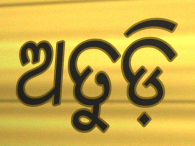
ଅତୁଡ଼ି